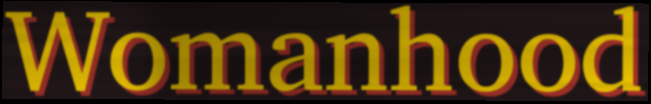
Womanhood